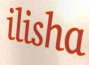
ilisha